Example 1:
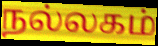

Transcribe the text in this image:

நல்லகம்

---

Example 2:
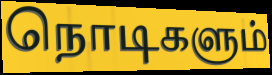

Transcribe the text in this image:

நொடிகளும்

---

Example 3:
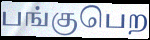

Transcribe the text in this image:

பங்குபெற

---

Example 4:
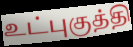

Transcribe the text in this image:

உட்புகுத்தி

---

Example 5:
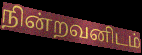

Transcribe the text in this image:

நின்றவனிடம்